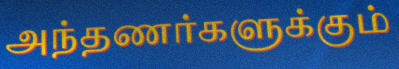
அந்தணர்களுக்கும்